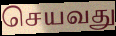
செயவது